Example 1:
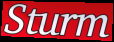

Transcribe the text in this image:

Sturm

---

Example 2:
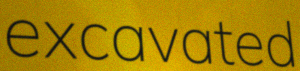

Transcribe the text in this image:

excavated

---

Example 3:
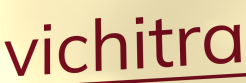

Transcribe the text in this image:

vichitra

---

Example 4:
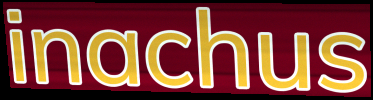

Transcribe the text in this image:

inachus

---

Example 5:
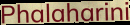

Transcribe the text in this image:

Phalaharini